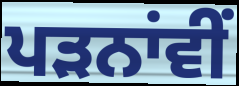
ਪੜਨਾਂਵੀਂ